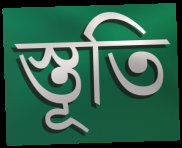
স্তূতি